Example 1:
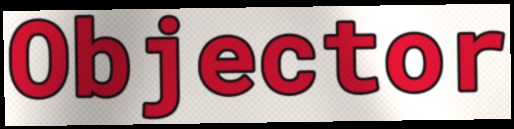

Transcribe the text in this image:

Objector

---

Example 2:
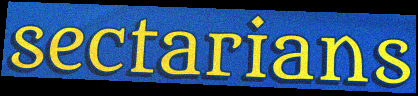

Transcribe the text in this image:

sectarians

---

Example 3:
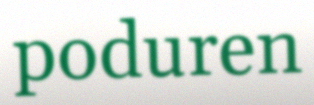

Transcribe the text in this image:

poduren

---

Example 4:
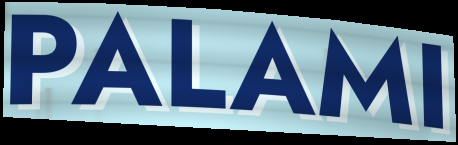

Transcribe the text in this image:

PALAMI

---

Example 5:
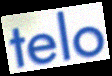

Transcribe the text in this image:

telo